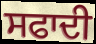
ਸਫਾਦੀ